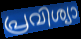
പ്രവിശ്യാ